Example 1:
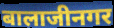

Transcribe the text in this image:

बालाजीनगर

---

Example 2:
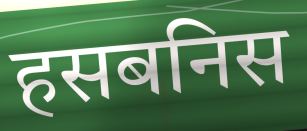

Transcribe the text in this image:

हसबनिस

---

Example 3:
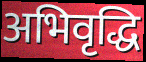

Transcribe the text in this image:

अभिवृद्धि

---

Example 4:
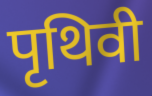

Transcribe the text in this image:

पृथिवी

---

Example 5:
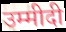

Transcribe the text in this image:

उम्मीदी